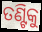
ତଣ୍ଟିକୁ